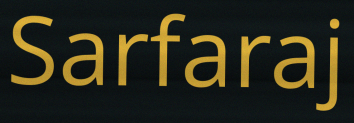
Sarfaraj